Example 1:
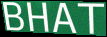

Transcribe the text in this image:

BHAT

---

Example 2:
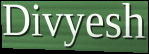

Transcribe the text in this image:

Divyesh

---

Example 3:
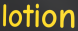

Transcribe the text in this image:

lotion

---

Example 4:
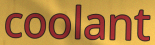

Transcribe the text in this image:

coolant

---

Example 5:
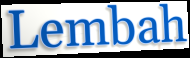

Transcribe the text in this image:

Lembah